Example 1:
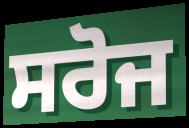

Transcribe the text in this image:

ਸਰੋਜ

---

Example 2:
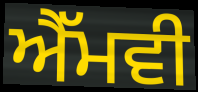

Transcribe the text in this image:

ਐੱਮਵੀ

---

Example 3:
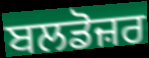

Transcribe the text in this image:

ਬਲਡੋਜ਼ਰ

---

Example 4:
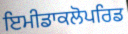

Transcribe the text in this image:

ਇਮੀਡਾਕਲੋਪਰਿਡ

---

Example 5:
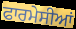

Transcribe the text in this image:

ਫਾਰਮੇਸੀਆਂ